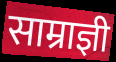
साम्राज्ञी